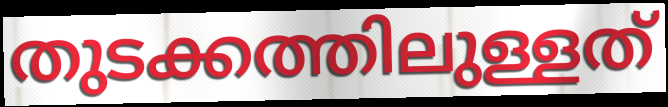
തുടക്കത്തിലുള്ളത്